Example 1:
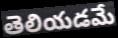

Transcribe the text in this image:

తెలియడమే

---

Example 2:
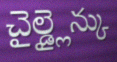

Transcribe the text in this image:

చైల్డ్లైన్కు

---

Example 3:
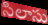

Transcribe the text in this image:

సిలాసు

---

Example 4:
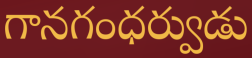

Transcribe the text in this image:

గానగంధర్వుడు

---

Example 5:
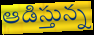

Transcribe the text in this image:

ఆడిస్తున్న